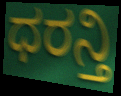
ಧರನ್ತಿ